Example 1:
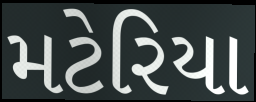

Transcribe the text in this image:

મટેરિયા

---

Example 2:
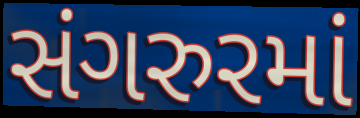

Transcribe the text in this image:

સંગરુરમાં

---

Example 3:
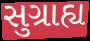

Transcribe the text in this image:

સુગ્રાહ્ય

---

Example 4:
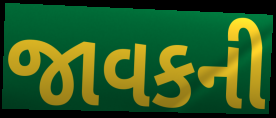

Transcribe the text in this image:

જાવકની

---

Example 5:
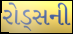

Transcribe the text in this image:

રોડ્સની